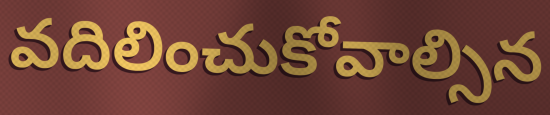
వదిలించుకోవాల్సిన